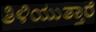
ತಿಳಿಯುತ್ತಾರೆ